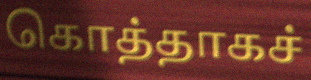
கொத்தாகச்